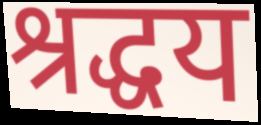
श्रद्धय